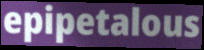
epipetalous